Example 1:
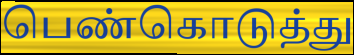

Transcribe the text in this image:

பெண்கொடுத்து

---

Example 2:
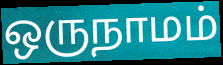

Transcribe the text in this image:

ஒருநாமம்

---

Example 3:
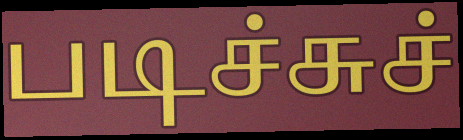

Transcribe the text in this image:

படிச்சுச்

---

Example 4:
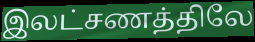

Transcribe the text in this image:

இலட்சணத்திலே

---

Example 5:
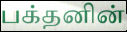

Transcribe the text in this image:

பக்தனின்